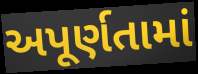
અપૂર્ણતામાં